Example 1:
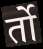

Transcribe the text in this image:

र्तो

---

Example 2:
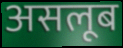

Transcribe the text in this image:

असलूब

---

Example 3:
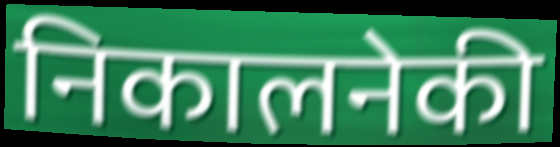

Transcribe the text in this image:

निकालनेकी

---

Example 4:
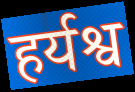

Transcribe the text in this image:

हर्यश्व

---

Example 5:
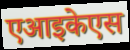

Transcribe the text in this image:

एआइकेएस